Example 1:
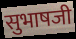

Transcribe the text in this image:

सुभाषजी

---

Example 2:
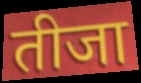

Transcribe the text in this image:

तीजा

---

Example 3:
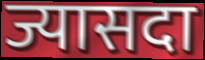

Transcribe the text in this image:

ज्यासदा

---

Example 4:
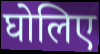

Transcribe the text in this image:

घोलिए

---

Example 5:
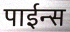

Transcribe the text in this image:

पाईन्स